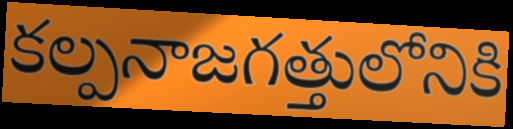
కల్పనాజగత్తులోనికి